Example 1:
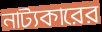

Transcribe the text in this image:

নাট্যকারের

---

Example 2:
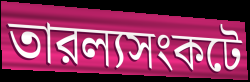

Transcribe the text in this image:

তারল্যসংকটে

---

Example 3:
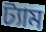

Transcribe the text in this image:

ট্যাম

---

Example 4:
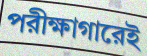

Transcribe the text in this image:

পরীক্ষাগারেই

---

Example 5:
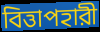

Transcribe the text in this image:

বিত্তাপহারী